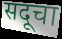
सदूचा